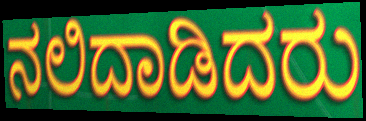
ನಲಿದಾಡಿದರು